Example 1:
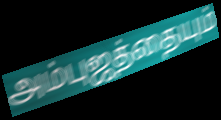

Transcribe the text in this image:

அம்புஜத்தையும்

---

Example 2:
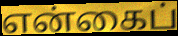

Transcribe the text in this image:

என்கைப்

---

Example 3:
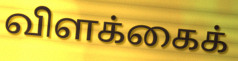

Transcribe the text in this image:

விளக்கைக்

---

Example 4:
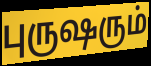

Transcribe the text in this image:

புருஷரும்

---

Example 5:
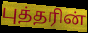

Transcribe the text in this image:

புத்தரின்